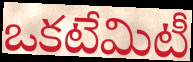
ఒకటేమిటీ